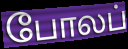
போலப்